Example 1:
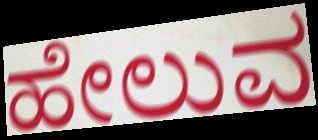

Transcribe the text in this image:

ಹೇಲುವ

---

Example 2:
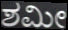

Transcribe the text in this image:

ಶಮೀ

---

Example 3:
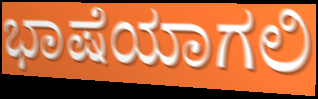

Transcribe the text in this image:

ಭಾಷೆಯಾಗಲಿ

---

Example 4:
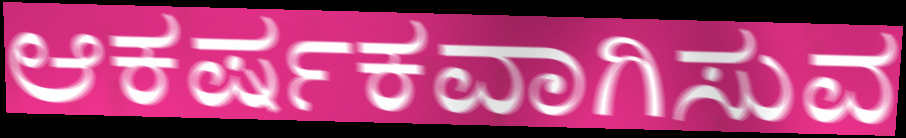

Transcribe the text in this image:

ಆಕರ್ಷಕವಾಗಿಸುವ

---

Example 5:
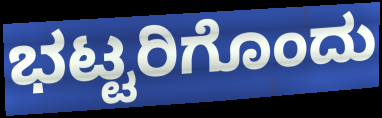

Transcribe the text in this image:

ಭಟ್ಟರಿಗೊಂದು